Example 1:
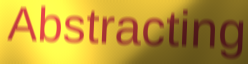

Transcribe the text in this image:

Abstracting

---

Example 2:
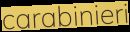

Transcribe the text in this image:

carabinieri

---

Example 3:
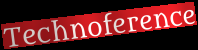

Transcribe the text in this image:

Technoference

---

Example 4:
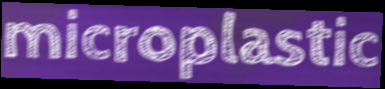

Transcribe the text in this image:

microplastic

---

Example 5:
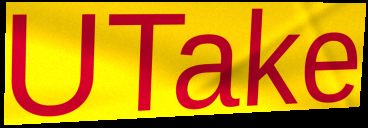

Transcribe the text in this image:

UTake